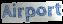
Airport